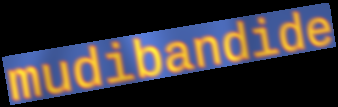
mudibandide